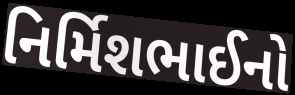
નિર્મિશભાઈનો